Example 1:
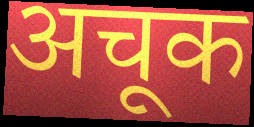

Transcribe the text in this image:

अचूक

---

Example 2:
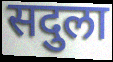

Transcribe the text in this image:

सदुला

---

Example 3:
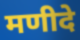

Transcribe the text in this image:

मणीदे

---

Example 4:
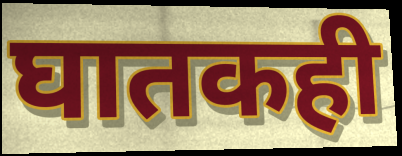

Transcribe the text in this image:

घातकही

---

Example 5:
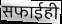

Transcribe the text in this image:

सफाईही